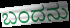
ಬಂದನು